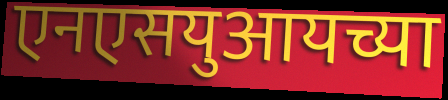
एनएसयुआयच्या